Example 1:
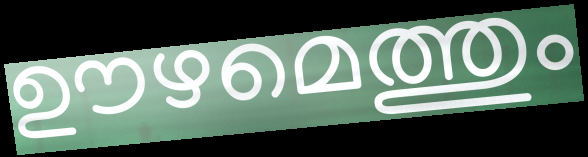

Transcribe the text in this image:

ഊഴമെത്തും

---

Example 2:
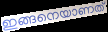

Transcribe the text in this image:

ഇങ്ങനെയാണത്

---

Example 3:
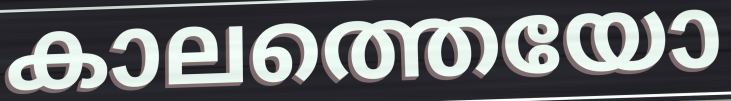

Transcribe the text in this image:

കാലത്തെയോ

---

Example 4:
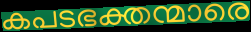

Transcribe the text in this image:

കപടഭക്തന്മാരെ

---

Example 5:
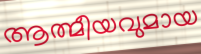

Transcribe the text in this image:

ആത്മീയവുമായ